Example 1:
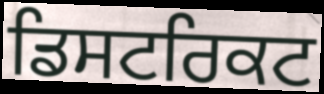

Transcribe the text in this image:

ਡਿਸਟਰਿਕਟ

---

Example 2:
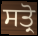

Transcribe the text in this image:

ਸਤ੍ਰੋ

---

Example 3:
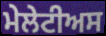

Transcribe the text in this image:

ਮੇਲੇਟੀਅਸ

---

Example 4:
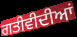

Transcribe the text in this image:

ਗਤੀਵੀਦੀਆਂ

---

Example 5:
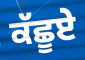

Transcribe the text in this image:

ਕੱਛੂਏ